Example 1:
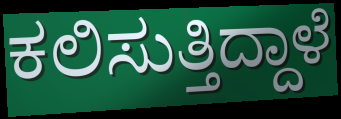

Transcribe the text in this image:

ಕಲಿಸುತ್ತಿದ್ದಾಳೆ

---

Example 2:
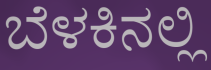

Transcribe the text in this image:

ಬೆಳಕಿನಲ್ಲಿ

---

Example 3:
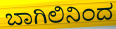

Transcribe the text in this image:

ಬಾಗಿಲಿನಿಂದ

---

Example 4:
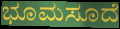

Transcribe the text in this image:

ಭೂಮಸೂದೆ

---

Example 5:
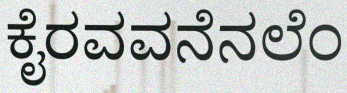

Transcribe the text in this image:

ಕೈರವವನೆನಲೆಂ